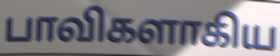
பாவிகளாகிய